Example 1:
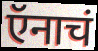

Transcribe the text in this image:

ऍनाचं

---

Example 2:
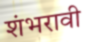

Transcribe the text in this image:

शंभरावी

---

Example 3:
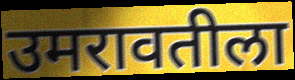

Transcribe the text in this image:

उमरावतीला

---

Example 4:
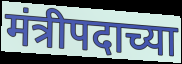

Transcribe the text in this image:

मंत्रीपदाच्या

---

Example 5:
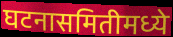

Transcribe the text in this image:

घटनासमितीमध्ये